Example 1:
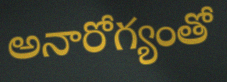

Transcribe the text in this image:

అనారోగ్యంతో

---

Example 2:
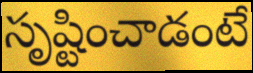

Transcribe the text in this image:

సృష్టించాడంటే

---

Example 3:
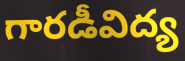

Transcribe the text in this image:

గారడీవిద్య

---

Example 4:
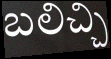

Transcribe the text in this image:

బలిచ్చి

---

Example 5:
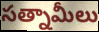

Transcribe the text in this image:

సత్నామీలు